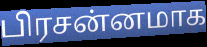
பிரசன்னமாக